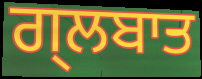
ਗ੍ਲਬਾਤ